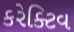
કરેક્ટિવ